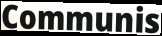
Communis